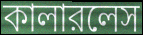
কালারলেস